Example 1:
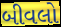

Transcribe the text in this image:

બીવલો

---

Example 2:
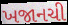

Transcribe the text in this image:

ખજાનચી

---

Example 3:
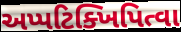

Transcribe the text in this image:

અપ્પટિક્ખિપિત્વા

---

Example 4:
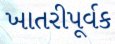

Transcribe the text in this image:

ખાતરીપૂર્વક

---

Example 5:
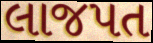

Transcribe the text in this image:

લાજપત